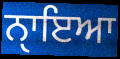
ਨੑਾਇਆ